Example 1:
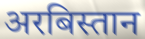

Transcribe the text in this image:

अरबिस्तान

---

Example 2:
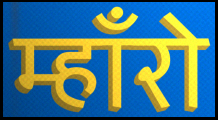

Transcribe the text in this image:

म्हाँरो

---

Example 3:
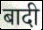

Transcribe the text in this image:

बादी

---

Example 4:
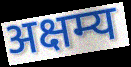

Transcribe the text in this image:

अक्षम्य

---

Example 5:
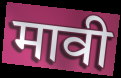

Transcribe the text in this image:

मावी